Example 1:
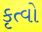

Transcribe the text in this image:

કૃત્વો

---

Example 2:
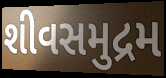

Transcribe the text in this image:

શીવસમુદ્રમ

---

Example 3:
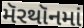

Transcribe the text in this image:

મૅરથૉનમાં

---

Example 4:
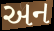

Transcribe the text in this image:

અન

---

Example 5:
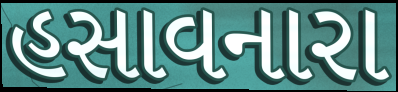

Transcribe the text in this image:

હસાવનારા